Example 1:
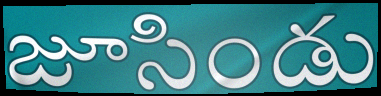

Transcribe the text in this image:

జూసిండు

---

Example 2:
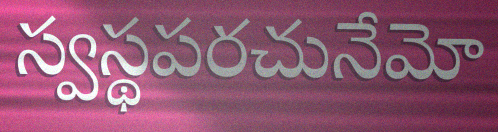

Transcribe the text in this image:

స్వస్థపరచునేమో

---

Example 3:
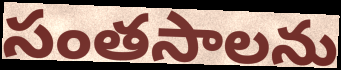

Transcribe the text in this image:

సంతసాలను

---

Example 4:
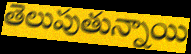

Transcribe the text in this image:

తెలుపుతున్నాయి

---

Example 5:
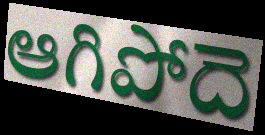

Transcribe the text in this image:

ఆగిపోదె